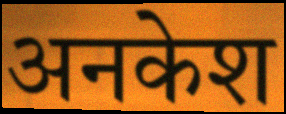
अनकेश